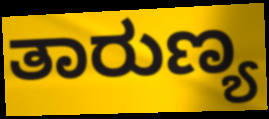
ತಾರುಣ್ಯ